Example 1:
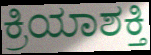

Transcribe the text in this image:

ಕ್ರಿಯಾಶಕ್ತಿ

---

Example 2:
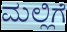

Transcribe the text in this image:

ಮಲ್ಲಿಗೆ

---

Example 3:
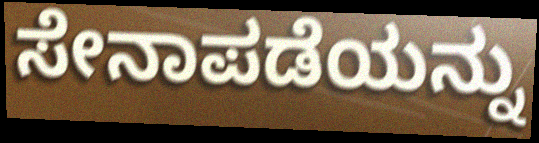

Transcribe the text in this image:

ಸೇನಾಪಡೆಯನ್ನು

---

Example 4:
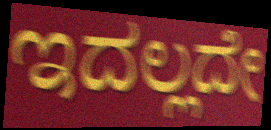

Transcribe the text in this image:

ಇದಲ್ಲದೇ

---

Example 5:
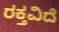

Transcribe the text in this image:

ರಕ್ತವಿದೆ